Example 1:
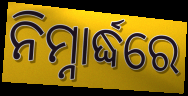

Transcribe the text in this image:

ନିମ୍ନାର୍ଦ୍ଧରେ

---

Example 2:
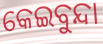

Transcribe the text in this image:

କେଇବୁନ୍ଦା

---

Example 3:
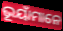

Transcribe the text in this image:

ଭୂୟାଁମାନେ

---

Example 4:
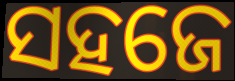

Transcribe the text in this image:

ସହଜେ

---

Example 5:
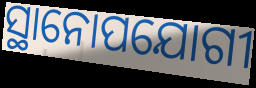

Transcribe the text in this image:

ସ୍ଥାନୋପଯୋଗୀ